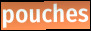
pouches